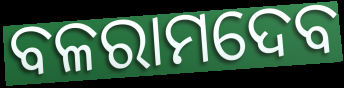
ବଳରାମଦେବ